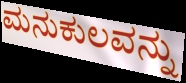
ಮನುಕುಲವನ್ನು